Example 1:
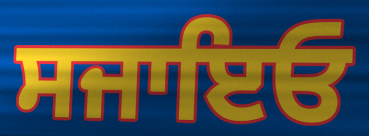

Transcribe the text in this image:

ਸਜਾਇਓ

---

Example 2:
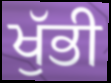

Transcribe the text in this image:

ਖੁੱਭੀ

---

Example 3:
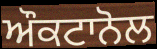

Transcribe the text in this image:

ਔਕਟਾਨੋਲ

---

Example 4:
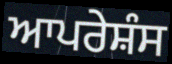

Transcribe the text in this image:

ਆਪਰੇਸ਼ੰਸ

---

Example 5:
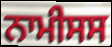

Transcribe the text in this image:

ਨਾਮੀਸਸ